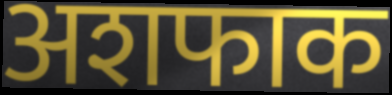
अशफाक